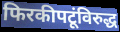
फिरकीपटूंविरुद्ध